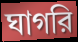
ঘাগরি